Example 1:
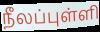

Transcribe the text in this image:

நீலப்புள்ளி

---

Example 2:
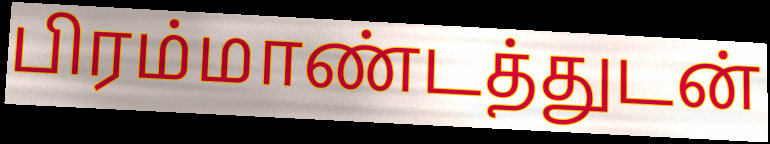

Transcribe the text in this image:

பிரம்மாண்டத்துடன்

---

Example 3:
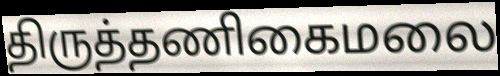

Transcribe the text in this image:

திருத்தணிகைமலை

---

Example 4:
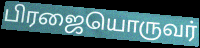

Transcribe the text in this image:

பிரஜையொருவர்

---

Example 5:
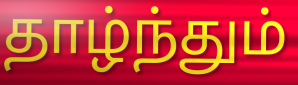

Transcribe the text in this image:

தாழ்ந்தும்